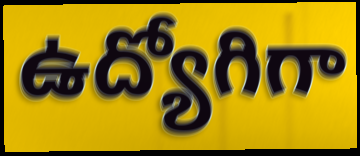
ఉద్యోగిగా